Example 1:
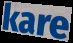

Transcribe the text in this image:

kare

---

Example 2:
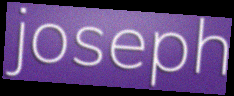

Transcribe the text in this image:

joseph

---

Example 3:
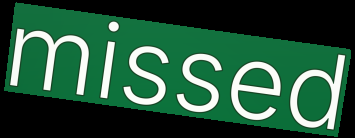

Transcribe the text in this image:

missed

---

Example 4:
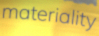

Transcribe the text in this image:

materiality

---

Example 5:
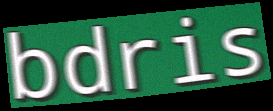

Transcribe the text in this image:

bdris